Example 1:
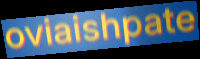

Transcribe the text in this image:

oviaishpate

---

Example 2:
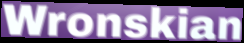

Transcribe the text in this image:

Wronskian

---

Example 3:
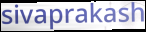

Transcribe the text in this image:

sivaprakash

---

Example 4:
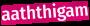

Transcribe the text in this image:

aaththigam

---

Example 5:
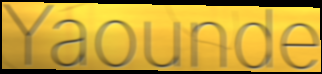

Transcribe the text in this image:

Yaounde